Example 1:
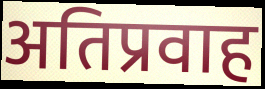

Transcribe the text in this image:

अतिप्रवाह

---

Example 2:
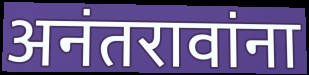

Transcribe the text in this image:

अनंतरावांना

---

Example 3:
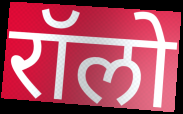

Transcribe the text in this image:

रॉलो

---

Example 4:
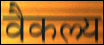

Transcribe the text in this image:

वैकल्य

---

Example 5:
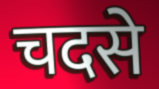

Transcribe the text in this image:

चदसे